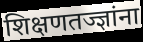
शिक्षणतज्ज्ञांना